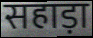
सहाड़ा